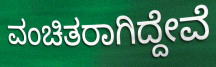
ವಂಚಿತರಾಗಿದ್ದೇವೆ